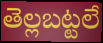
తెల్లబట్టలే